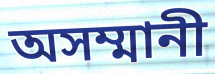
অসম্মানী